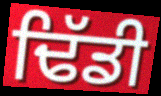
ਢਿੱਡੀ